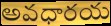
అవధారయ